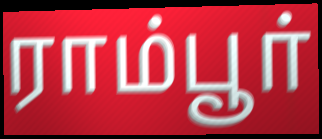
ராம்பூர்